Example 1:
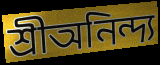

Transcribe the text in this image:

শ্রীঅনিন্দ্য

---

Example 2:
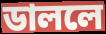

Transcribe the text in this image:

ডাললে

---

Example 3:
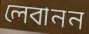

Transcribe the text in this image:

লেবানন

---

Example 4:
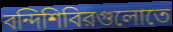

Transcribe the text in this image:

বন্দিশিবিরগুলোতে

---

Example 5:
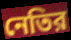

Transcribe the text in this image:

নেতির